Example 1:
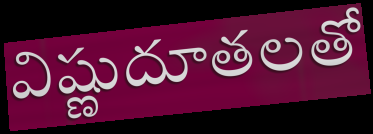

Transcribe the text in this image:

విష్ణుదూతలతో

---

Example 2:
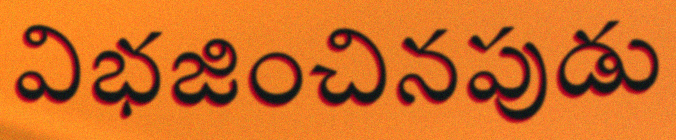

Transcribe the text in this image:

విభజించినపుడు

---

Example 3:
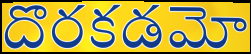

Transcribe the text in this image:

దొరకడమో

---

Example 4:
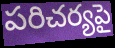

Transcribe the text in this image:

పరిచర్యపై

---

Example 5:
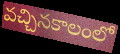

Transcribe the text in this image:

వచ్చినకాలంలో